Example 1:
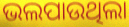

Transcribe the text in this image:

ଭଲପାଉଥିଲା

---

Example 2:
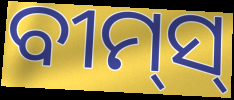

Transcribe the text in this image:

ବୀମ୍‌ସ୍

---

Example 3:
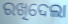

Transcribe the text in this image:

ରଖିଦେଲା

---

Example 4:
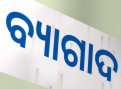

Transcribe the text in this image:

ବ୍ୟାଗାଦ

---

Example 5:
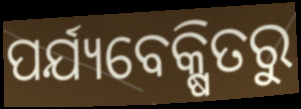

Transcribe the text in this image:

ପର୍ଯ୍ୟବେକ୍ଷିତରୁ